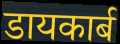
डायकार्ब